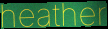
heather